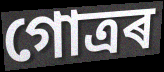
গোত্ৰৰ